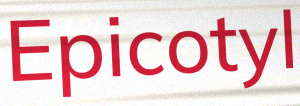
Epicotyl